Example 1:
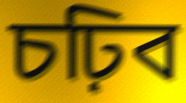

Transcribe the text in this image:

চঢ়িব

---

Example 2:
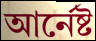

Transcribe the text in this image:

আৰ্নেষ্ট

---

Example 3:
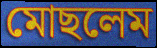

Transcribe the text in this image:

মোছলেম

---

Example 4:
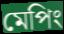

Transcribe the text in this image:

মেপিং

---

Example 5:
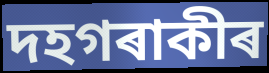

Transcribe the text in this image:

দহগৰাকীৰ